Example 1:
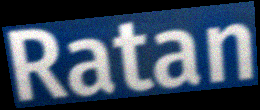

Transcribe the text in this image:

Ratan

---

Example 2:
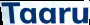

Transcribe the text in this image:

Taaru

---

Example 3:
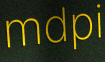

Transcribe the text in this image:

mdpi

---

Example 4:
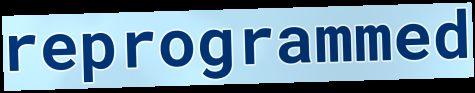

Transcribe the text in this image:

reprogrammed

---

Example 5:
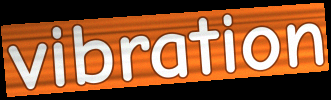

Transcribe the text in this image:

vibration